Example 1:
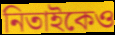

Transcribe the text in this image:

নিতাইকেও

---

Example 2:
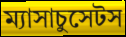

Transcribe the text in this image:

ম্যাসাচুসেটস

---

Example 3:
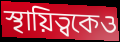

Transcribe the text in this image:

স্থায়িত্বকেও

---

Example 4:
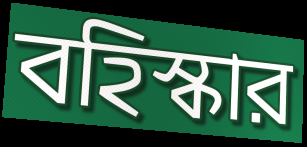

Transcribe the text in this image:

বহিস্কার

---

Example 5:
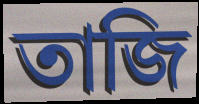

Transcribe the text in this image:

তাজি